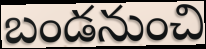
బండనుంచి